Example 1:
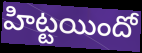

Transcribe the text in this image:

హిట్టయిందో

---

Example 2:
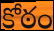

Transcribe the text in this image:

కోఠం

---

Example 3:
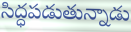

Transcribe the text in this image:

సిద్ధపడుతున్నాడు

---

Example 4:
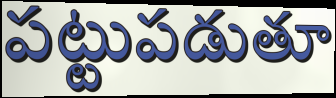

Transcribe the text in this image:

పట్టుపడుతూ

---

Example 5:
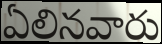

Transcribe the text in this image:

ఏలినవారు